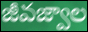
జీవజ్వాల